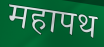
महापथ